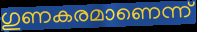
ഗുണകരമാണെന്ന്